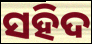
ସହିଦ